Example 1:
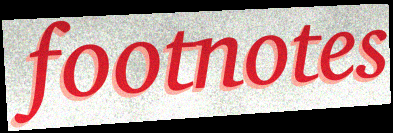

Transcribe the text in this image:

footnotes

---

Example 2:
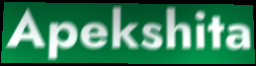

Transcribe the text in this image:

Apekshita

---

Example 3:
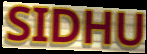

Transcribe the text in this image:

SIDHU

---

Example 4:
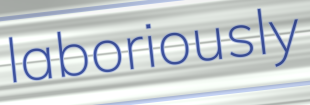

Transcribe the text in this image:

laboriously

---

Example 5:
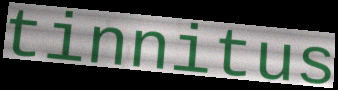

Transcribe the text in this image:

tinnitus